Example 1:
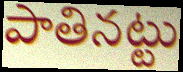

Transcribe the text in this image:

పాతినట్టు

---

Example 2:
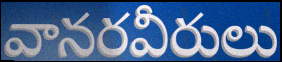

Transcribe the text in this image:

వానరవీరులు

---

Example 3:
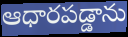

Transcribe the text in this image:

ఆధారపడ్డాను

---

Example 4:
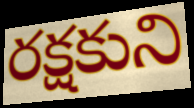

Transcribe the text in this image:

రక్షకుని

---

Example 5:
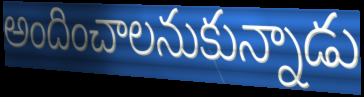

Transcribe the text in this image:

అందించాలనుకున్నాడు